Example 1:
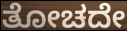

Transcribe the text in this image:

ತೋಚದೇ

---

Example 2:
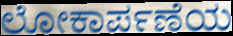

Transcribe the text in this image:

ಲೋಕಾರ್ಪಣೆಯ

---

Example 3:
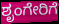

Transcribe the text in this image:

ಶೃಂಗೇರಿಗೆ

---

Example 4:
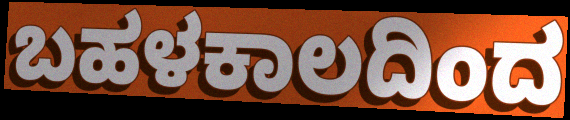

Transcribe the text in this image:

ಬಹಳಕಾಲದಿಂದ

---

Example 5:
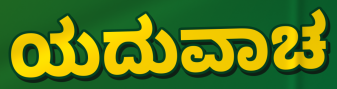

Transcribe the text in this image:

ಯದುವಾಚ